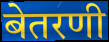
बेतरणी